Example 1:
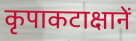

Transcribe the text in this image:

कृपाकटाक्षानें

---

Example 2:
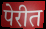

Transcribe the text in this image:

पेरीत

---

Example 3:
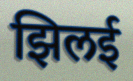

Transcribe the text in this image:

झिलई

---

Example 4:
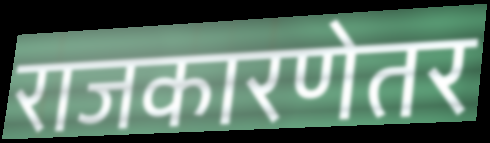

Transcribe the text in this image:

राजकारणेतर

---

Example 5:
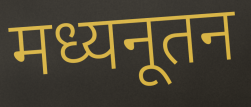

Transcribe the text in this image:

मध्यनूतन